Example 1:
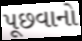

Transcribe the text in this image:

પૂછવાનો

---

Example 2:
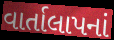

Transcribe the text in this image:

વાર્તાલાપનાં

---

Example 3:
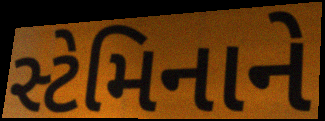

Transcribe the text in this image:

સ્ટેમિનાને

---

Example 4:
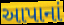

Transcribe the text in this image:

આપાનાં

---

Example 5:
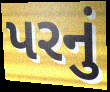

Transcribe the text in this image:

પરનું